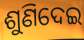
ଶୁଣିଦେଇ